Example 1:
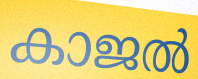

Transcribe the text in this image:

കാജൽ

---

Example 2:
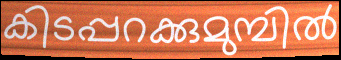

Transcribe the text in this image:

കിടപ്പറക്കുമുമ്പിൽ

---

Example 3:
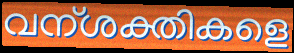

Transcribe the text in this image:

വന്ശക്തികളെ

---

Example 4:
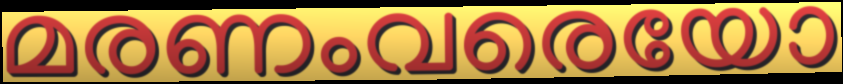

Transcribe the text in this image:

മരണംവരെയോ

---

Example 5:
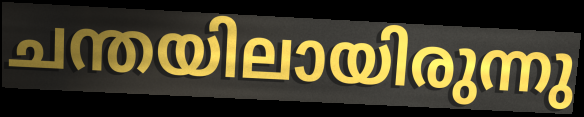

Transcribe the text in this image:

ചന്തയിലായിരുന്നു